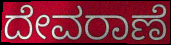
ದೇವರಾಣೆ